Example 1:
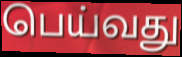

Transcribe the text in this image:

பெய்வது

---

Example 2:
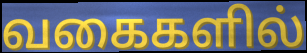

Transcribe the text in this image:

வகைகளில்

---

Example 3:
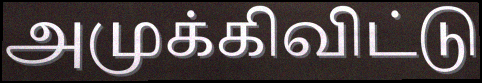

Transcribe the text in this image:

அமுக்கிவிட்டு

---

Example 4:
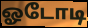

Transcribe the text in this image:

ஓடோடி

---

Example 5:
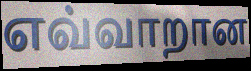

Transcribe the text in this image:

எவ்வாறான